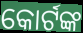
କୋର୍ଟଙ୍କ